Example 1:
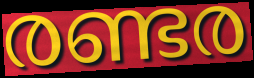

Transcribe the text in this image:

രണ്ടര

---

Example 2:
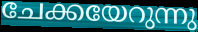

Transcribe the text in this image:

ചേക്കയേറുന്നു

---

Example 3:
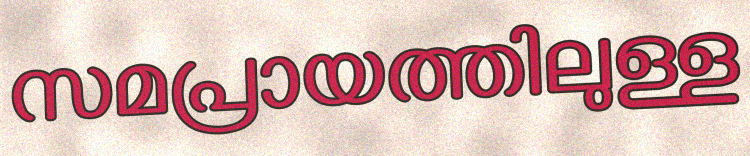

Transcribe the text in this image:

സമപ്രായത്തിലുള്ള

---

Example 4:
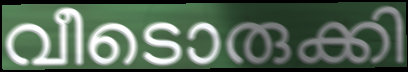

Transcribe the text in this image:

വീടൊരുക്കി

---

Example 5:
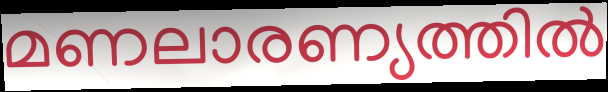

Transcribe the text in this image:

മണലാരണ്യത്തിൽ